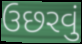
ઉછરવું